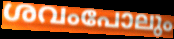
ശവംപോലും